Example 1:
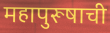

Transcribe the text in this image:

महापुरूषाची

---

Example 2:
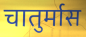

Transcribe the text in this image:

चातुर्मास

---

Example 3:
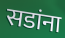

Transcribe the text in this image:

सडांना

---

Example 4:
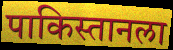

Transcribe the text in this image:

पाकिस्तानला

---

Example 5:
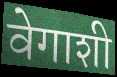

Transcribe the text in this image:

वेगाशी